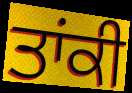
ਤਾਂਕੀ